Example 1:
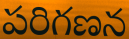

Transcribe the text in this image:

పరిగణన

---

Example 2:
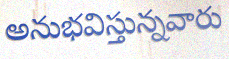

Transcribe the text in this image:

అనుభవిస్తున్నవారు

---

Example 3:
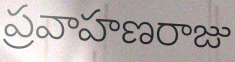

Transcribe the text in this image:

ప్రవాహణరాజు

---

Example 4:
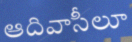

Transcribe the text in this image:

ఆదివాసీలూ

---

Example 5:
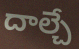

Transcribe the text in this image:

దాల్చే